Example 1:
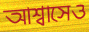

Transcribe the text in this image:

আশ্বাসেও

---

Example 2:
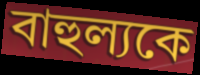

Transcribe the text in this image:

বাহুল্যকে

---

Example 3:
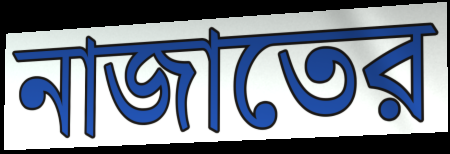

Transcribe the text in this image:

নাজাতের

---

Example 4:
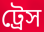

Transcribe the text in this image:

ট্রেস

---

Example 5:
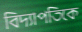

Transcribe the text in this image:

বিদ্যাপতিকে